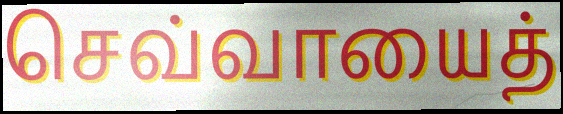
செவ்வாயைத்